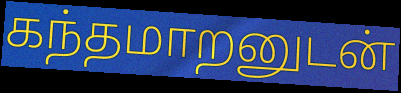
கந்தமாறனுடன்